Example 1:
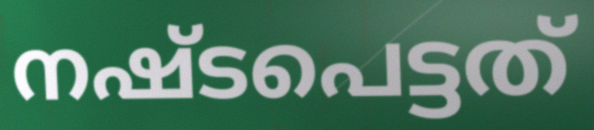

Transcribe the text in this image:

നഷ്ടപെട്ടത്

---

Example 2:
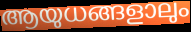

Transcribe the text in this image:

ആയുധങ്ങളാലും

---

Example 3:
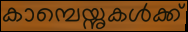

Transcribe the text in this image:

കാമ്പെയ്നുകൾക്ക്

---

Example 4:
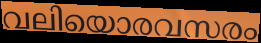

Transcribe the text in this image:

വലിയൊരവസരം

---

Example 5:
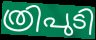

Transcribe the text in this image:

ത്രിപുടി